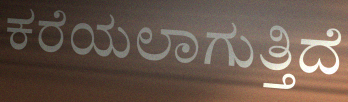
ಕರೆಯಲಾಗುತ್ತಿದೆ